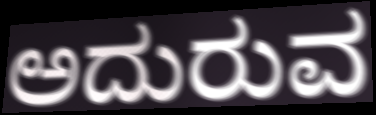
ಅದುರುವ